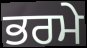
ਭਰਮੇ